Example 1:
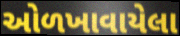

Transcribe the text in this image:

ઓળખાવાયેલા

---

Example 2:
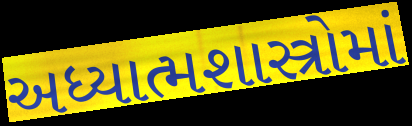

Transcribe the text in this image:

અધ્યાત્મશાસ્ત્રોમાં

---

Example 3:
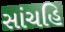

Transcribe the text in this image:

સાંચહિ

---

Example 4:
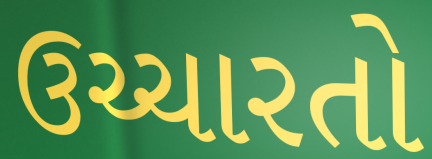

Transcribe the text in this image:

ઉચ્ચારતો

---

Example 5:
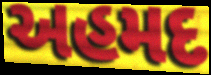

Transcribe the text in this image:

અહમદ